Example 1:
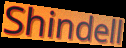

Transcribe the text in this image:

Shindell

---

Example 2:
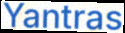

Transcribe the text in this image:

Yantras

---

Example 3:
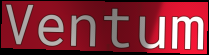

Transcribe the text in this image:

Ventum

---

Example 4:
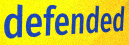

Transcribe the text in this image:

defended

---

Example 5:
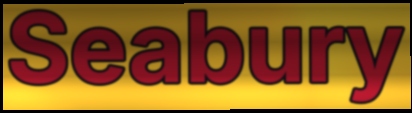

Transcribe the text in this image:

Seabury